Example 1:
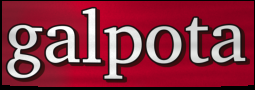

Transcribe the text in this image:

galpota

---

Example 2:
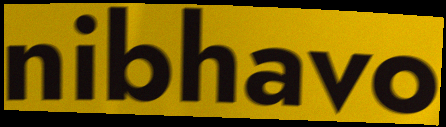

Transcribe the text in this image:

nibhavo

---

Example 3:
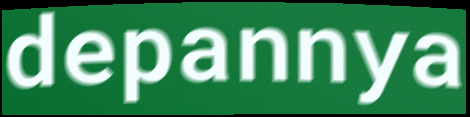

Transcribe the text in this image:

depannya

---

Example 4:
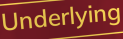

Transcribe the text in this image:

Underlying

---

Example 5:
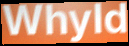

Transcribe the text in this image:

Whyld